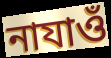
নাযাওঁ